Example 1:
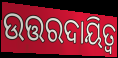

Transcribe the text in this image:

ଉତ୍ତରଦାୟିତ୍ବ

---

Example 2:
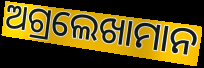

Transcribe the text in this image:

ଅଗ୍ରଲେଖାମାନ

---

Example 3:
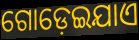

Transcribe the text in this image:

ଗୋଡ଼େଇଯାଏ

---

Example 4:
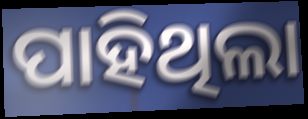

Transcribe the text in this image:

ପାହିଥିଲା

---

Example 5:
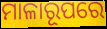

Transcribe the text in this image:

ମାଳାରୂପରେ